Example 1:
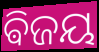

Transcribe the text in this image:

ଵିଜୟ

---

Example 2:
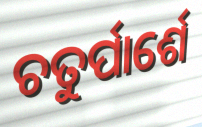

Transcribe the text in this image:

ଚତୁର୍ପାର୍ଶେ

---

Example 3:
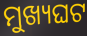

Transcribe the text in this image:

ମୁଖ୍ୟଘଟ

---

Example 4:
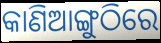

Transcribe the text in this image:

କାଣିଆଙ୍ଗୁଠିରେ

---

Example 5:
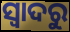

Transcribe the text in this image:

ସ୍ୱାଦରୁ